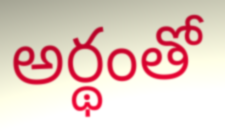
అర్థంతో